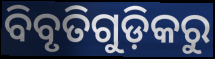
ବିବୃତିଗୁଡ଼ିକରୁ